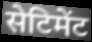
सेटिमेंट